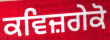
ਕਵਿਜ਼ਗੇਕੋ